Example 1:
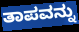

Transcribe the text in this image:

ತಾಪವನ್ನು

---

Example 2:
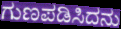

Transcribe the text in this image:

ಗುಣಪಡಿಸಿದನು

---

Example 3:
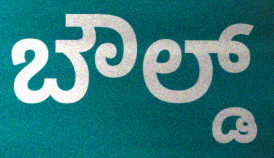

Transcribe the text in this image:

ಬೌಲ್ಡ್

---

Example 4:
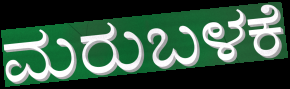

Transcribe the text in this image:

ಮರುಬಳಕೆ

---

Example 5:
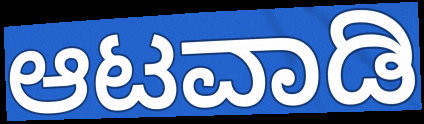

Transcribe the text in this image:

ಆಟವಾಡಿ